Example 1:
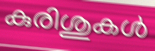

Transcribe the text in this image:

കുരിശുകൾ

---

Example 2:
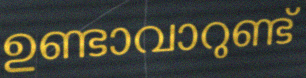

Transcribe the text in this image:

ഉണ്ടാവാറുണ്ട്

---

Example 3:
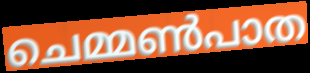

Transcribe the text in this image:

ചെമ്മൺപാത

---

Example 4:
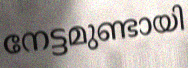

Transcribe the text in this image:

നേട്ടമുണ്ടായി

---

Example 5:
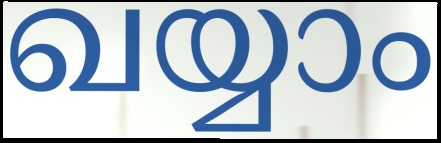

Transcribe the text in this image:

ഖയ്യാം